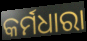
କର୍ମଧାରା